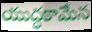
యుద్ధకామేన